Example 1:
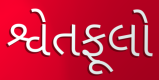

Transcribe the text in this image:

શ્વેતફૂલો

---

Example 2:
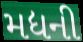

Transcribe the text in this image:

મદ્યની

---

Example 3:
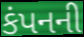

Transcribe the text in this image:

કંપનની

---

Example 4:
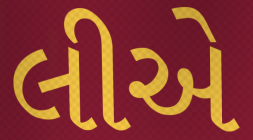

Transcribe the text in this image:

લીએ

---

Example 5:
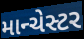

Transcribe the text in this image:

માન્ચેસ્ટર